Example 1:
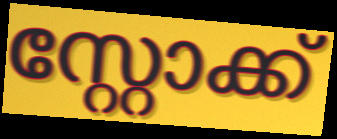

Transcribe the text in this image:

സ്റ്റോക്ക്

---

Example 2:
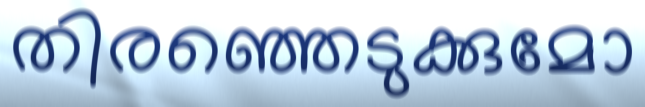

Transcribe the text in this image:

തിരഞ്ഞെടുക്കുമോ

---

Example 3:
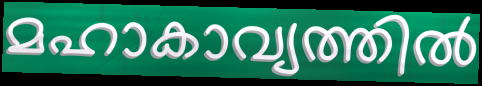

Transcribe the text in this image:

മഹാകാവ്യത്തിൽ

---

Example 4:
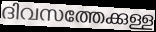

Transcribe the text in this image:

ദിവസത്തേക്കുള്ള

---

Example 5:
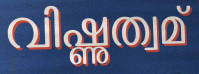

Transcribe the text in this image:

വിഷ്ണുത്വമ്